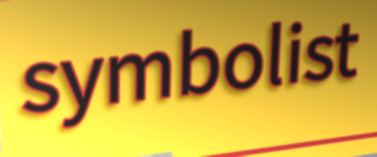
symbolist